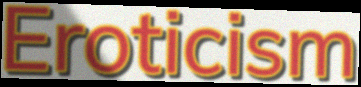
Eroticism